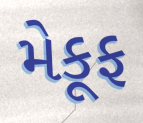
મેકૂફ